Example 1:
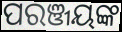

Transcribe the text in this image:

ପରଞ୍ଜୟଙ୍କ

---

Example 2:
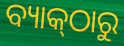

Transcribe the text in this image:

ବ୍ୟାକ୍‌ଠାରୁ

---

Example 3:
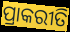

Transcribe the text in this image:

ପ୍ରାକରୀତି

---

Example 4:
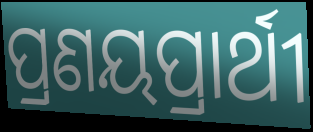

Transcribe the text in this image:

ପ୍ରଣୟପ୍ରାର୍ଥୀ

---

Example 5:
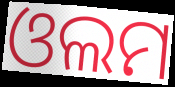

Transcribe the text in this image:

ଓଲମ